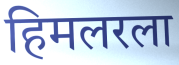
हिमलरला